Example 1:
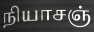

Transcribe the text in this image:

நியாசஞ்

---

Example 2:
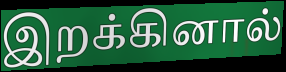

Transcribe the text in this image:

இறக்கினால்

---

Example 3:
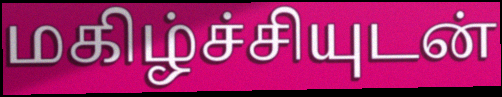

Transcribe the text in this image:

மகிழ்ச்சியுடன்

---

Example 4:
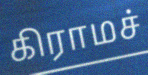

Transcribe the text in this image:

கிராமச்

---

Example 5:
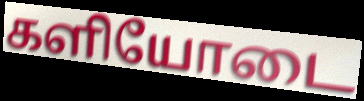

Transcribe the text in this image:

களியோடை